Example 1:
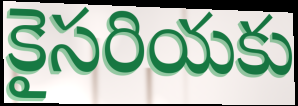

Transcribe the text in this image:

కైసరియకు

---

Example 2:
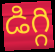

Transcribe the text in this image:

డిగ్గి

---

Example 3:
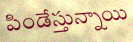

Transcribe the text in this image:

పిండేస్తున్నాయి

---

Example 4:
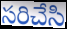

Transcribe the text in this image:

సరిచేసి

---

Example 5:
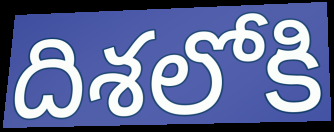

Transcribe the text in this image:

దిశలోకి